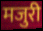
मजुरी